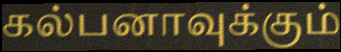
கல்பனாவுக்கும்